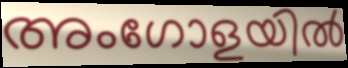
അംഗോളയിൽ